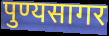
पुण्यसागर